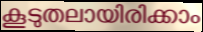
കൂടുതലായിരിക്കാം